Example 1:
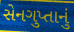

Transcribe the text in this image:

સેનગુપ્‍તાનું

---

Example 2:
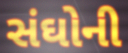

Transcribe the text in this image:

સંઘોની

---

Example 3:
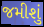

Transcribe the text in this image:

જમીશું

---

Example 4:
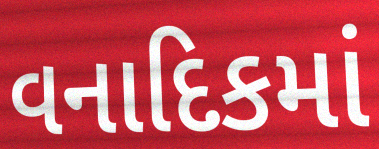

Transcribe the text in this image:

વનાદિકમાં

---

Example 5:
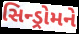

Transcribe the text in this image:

સિન્ડ્રોમને